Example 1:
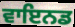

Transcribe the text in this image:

ਵਾਇਨਡ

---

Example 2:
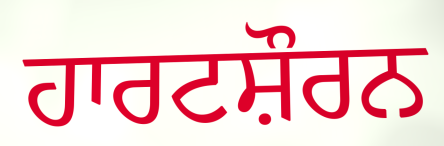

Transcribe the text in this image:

ਹਾਰਟਸ਼ੌਰਨ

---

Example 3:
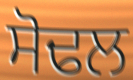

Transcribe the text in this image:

ਸੋਢਲ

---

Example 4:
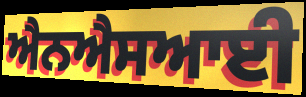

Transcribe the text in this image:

ਐਨਐਸਆਈ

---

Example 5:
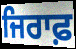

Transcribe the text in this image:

ਜਿਰਾਫ਼